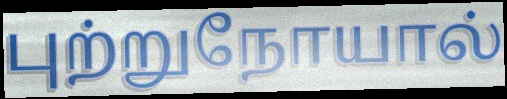
புற்றுநோயால்